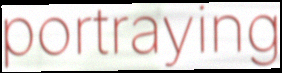
portraying